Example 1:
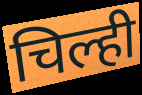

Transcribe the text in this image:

चिल्ही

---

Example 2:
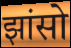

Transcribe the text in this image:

झांसो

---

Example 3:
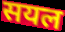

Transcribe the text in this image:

सयल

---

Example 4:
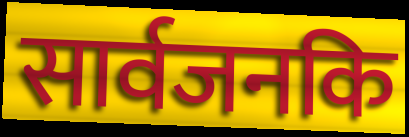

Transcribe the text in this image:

सार्वजनकि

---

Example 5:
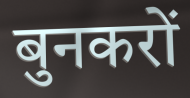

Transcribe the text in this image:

बुनकरों